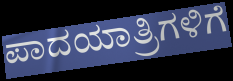
ಪಾದಯಾತ್ರಿಗಳಿಗೆ